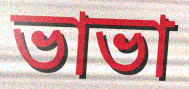
ভাভা